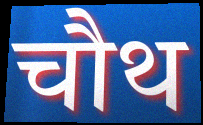
चौथ